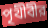
পৃথীবীর